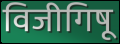
विजीगिषू